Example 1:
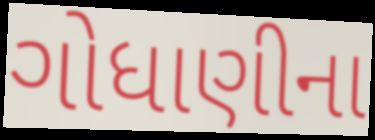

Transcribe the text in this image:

ગોધાણીના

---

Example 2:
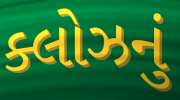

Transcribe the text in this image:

ક્લોઝનું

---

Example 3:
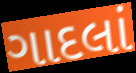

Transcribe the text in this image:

ગાદલાં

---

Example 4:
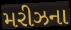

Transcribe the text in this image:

મરીઝના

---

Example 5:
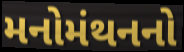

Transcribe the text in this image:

મનોમંથનનો